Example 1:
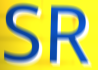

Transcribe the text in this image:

SR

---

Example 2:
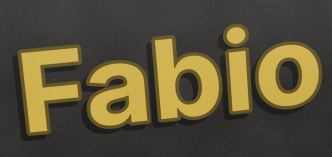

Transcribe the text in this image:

Fabio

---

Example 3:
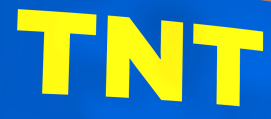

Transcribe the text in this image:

TNT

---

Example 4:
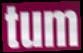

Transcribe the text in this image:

tum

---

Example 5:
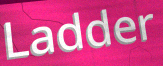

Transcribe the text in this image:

Ladder